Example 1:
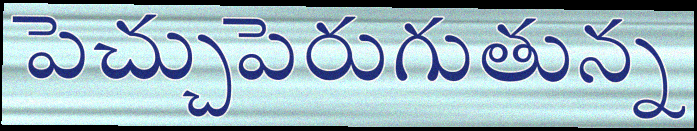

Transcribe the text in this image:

పెచ్చుపెరుగుతున్న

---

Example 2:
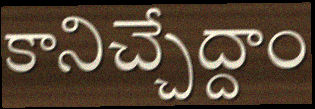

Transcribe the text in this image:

కానిచ్చేద్దాం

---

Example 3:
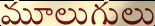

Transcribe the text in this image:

మూలుగులు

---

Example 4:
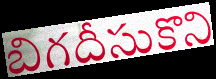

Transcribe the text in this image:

బిగదీసుకొని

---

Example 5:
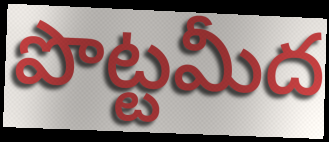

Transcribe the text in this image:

పొట్టమీద